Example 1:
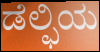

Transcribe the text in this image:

ಡೆಲ್ಫಿಯ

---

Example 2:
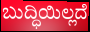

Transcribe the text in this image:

ಬುದ್ಧಿಯಿಲ್ಲದೆ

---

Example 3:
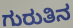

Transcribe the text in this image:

ಗುರುತಿನ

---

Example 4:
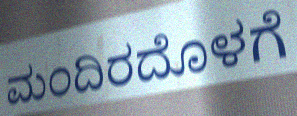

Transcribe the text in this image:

ಮಂದಿರದೊಳಗೆ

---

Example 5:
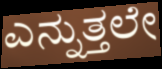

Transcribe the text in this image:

ಎನ್ನುತ್ತಲೇ